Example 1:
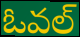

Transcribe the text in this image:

ఓవల్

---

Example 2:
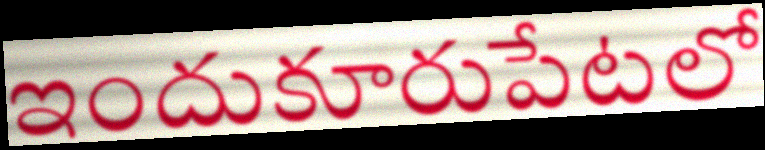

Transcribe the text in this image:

ఇందుకూరుపేటలో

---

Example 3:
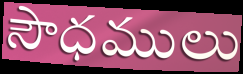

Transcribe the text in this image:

సౌధములు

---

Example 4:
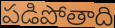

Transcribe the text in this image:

పడిపోతాది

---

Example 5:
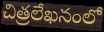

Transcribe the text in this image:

చిత్రలేఖనంలో